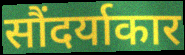
सौंदर्याकार